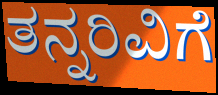
ತನ್ನರಿವಿಗೆ